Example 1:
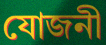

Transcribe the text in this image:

যোজনী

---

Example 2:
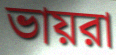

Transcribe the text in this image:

ভায়রা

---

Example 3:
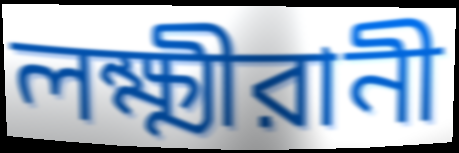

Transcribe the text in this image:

লক্ষ্মীরানী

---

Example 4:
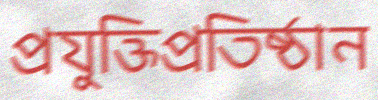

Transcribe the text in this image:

প্রযুক্তিপ্রতিষ্ঠান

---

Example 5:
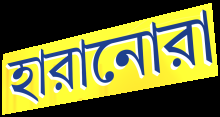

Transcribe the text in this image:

হারানোরা